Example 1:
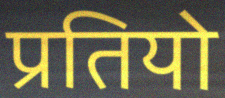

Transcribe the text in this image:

प्रतियो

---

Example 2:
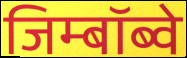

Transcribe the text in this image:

जिम्बॉब्वे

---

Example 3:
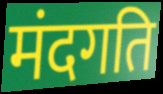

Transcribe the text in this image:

मंदगति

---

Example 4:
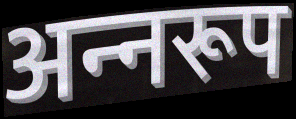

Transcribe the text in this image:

अन्नरूप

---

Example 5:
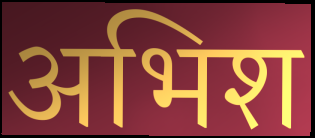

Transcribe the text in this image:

अभिश